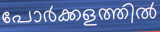
പോർക്കളത്തിൽ